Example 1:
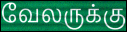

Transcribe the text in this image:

வேலருக்கு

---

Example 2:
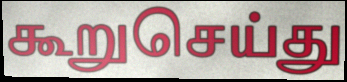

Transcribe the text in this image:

கூறுசெய்து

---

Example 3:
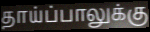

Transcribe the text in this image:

தாய்ப்பாலுக்கு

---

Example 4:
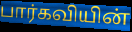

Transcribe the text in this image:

பார்கவியின்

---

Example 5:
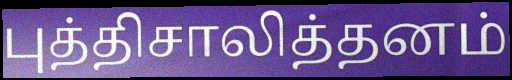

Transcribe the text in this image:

புத்திசாலித்தனம்